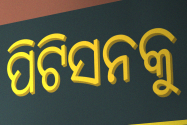
ପିଟିସନକୁ